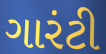
ગારંટી